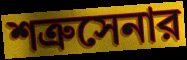
শত্রুসেনার